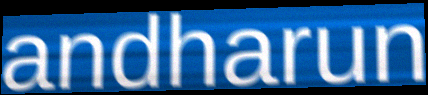
andharun